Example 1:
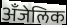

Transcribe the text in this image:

अँजेलिक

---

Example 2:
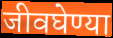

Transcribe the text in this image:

जीवघेण्या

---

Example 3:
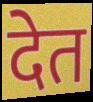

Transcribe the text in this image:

देत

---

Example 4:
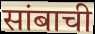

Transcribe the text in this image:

सांबाची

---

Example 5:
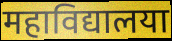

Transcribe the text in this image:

महाविद्यालया